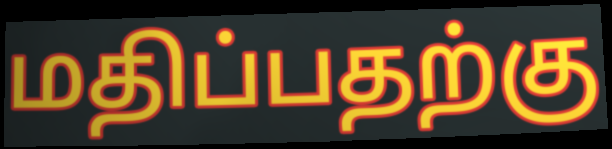
மதிப்பதற்கு